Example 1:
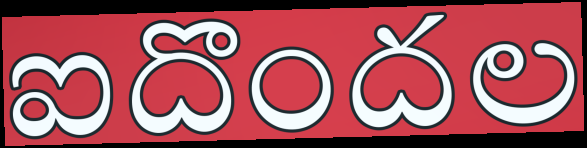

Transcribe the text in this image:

ఐదొందల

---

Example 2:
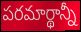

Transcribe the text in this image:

పరమార్థాన్నీ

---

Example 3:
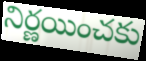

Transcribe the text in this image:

నిర్ణయించకు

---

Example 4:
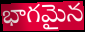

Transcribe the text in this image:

భాగమైన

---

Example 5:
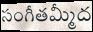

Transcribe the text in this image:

సంగీతమ్మీద